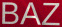
BAZ